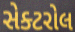
સેક્ટરોલ